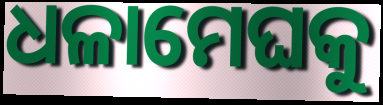
ଧଳାମେଘକୁ